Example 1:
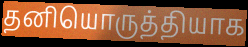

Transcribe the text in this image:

தனியொருத்தியாக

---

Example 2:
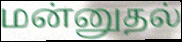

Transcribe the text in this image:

மன்னுதல்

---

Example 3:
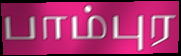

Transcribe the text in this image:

பாம்புர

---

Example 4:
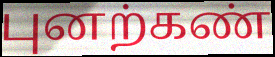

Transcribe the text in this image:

புனற்கண்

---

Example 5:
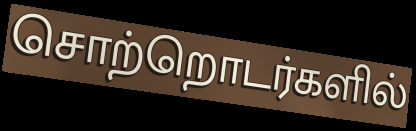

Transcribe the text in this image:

சொற்றொடர்களில்